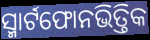
ସ୍ମାର୍ଟଫୋନଭିତ୍ତିକ